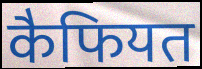
कैफियत